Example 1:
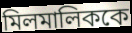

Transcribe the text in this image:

মিলমালিককে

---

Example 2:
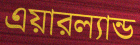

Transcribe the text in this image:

এয়ারল্যান্ড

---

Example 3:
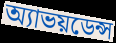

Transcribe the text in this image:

অ্যাভয়ডেন্স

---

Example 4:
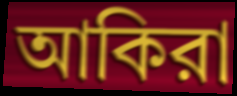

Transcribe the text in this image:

আকিরা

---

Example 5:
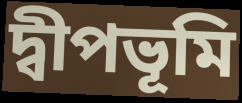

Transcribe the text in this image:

দ্বীপভূমি